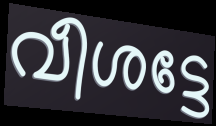
വീശട്ടേ